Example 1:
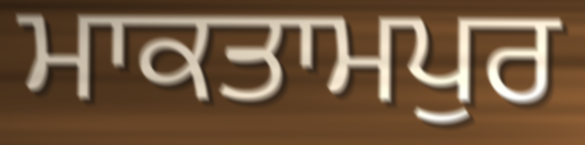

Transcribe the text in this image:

ਮਾਕਤਾਮਪੁਰ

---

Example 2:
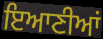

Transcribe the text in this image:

ਇਆਣੀਆਂ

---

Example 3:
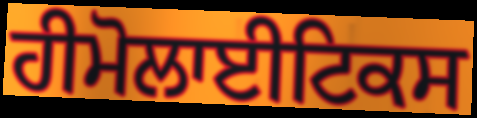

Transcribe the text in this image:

ਹੀਮੋਲਾਈਟਿਕਸ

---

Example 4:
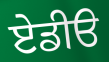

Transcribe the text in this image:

ਏਡੀੳ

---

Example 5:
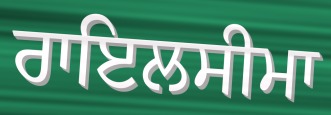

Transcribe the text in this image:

ਰਾਇਲਸੀਮਾ